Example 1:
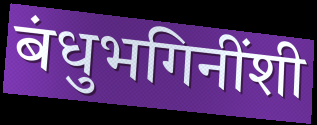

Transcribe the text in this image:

बंधुभगिनींशी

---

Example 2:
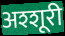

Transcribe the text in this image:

अश्‍शूरी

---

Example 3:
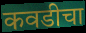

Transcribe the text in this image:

कवडीचा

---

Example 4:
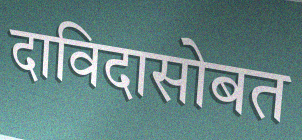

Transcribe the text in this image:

दाविदासोबत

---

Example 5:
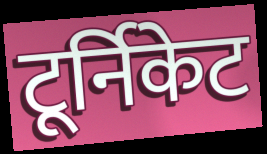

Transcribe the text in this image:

टूर्निकेट